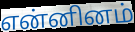
என்னினம்